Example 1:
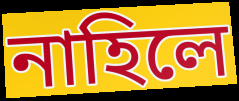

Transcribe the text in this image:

নাহিলে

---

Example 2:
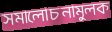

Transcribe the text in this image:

সমালোচনামুলক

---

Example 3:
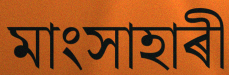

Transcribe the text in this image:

মাংসাহাৰী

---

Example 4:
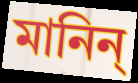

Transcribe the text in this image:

মানিন্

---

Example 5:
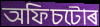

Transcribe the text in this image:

অফিচটোৰ